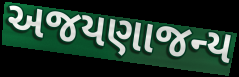
અજયણાજન્ય